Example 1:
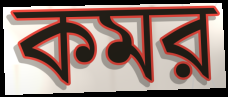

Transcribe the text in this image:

কমর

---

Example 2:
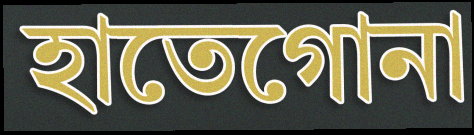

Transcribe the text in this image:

হাতেগোনা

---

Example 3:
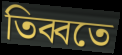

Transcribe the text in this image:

তিব্বতে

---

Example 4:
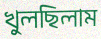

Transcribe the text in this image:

খুলছিলাম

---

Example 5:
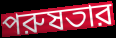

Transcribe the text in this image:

পরুষতার